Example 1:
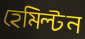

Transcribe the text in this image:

হেমিল্টন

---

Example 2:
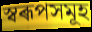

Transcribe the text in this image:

স্বৰূপসমূহ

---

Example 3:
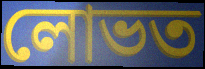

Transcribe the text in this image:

লোভত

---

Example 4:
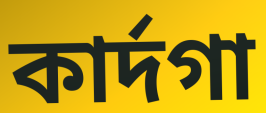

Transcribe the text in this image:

কাৰ্দগা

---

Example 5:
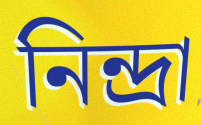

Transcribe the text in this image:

নিন্দ্ৰা